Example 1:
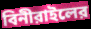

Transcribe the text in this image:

বিনীরাইলের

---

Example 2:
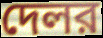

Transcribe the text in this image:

দেলর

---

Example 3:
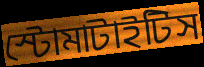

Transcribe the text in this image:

স্টোমাটাইটিস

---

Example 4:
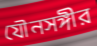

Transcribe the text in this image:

যৌনসঙ্গীর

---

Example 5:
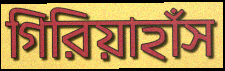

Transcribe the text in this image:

গিরিয়াহাঁস